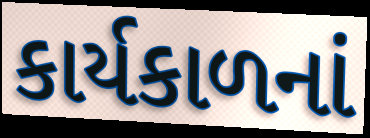
કાર્યકાળનાં